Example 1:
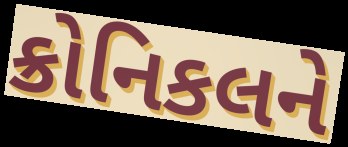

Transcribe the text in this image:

ક્રોનિકલને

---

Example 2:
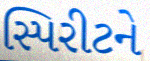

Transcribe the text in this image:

સ્પિરીટને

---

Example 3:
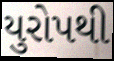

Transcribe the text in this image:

યુરોપથી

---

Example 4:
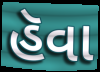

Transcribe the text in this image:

હૅવા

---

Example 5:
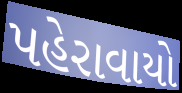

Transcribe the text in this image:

પહેરાવાયો